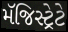
મૅજિસ્ટ્રેટે